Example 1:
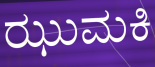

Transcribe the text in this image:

ಝುಮಕಿ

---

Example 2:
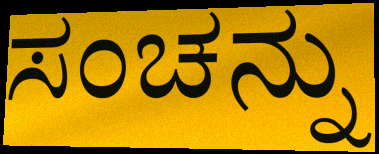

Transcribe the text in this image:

ಸಂಚನ್ನು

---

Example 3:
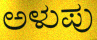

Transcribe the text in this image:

ಅಳುಪು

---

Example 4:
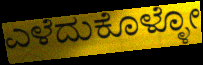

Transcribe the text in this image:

ಎಳೆದುಕೊಳ್ಳೋ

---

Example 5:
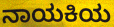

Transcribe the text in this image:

ನಾಯಕಿಯ